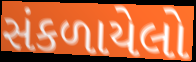
સંકળાયેલો